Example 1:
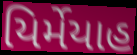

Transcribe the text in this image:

યિર્મેયાહ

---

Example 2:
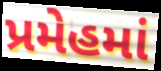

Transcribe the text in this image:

પ્રમેહમાં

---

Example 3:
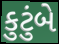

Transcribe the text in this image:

કુટુંબે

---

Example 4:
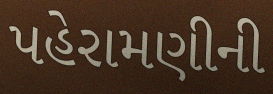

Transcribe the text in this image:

પહેરામણીની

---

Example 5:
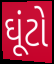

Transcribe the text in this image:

ઘૂંટો